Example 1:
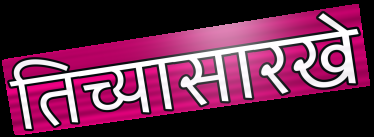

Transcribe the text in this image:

तिच्यासारखे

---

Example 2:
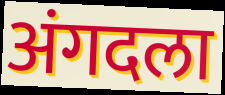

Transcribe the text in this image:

अंगदला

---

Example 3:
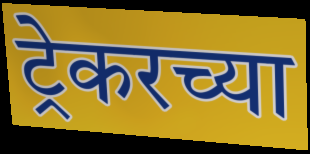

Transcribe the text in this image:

ट्रेकरच्या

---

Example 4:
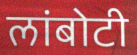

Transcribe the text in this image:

लांबोटी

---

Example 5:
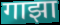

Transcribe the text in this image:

गाझा